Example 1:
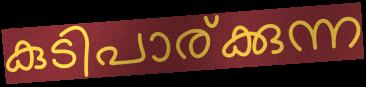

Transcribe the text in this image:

കുടിപാര്ക്കുന്ന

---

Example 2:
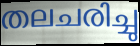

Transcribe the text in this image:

തലചരിച്ചു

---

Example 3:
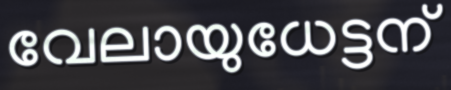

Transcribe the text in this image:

വേലായുധേട്ടന്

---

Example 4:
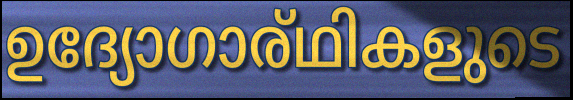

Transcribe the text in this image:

ഉദ്യോഗാര്ഥികളുടെ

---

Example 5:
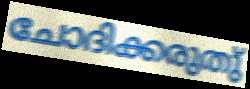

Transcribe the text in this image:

ചോദിക്കരുതു്